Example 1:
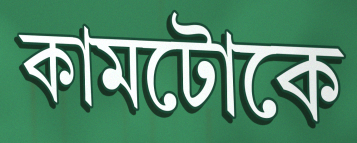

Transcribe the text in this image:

কামটোকে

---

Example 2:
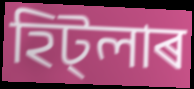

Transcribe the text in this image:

হিট্‌লাৰ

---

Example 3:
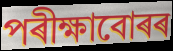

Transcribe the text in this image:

পৰীক্ষাবোৰৰ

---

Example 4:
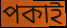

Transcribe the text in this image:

পকাই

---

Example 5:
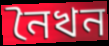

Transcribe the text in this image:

নৈখন